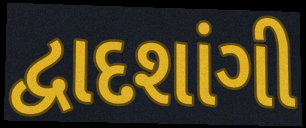
દ્વાદશાંગી